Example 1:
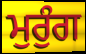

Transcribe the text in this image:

ਮੁਰੁੰਗ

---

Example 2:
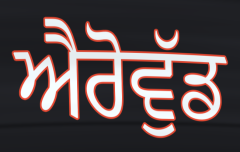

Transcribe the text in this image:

ਐਰੋਵੁੱਡ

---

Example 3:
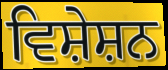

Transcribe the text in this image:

ਵਿਸ਼ੇਸ਼ਨ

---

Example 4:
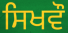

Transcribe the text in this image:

ਸਿਖਵੌ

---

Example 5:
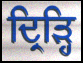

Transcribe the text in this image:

ਦ੍ਰਿੜ੍ਹਿ